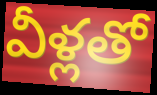
వీళ్లతో